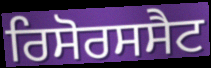
ਰਿਸੋਰਸਸੈਟ